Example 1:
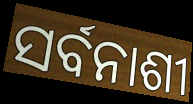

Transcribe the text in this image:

ସର୍ବନାଶୀ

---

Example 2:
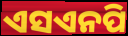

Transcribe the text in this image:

ଏସଏନପି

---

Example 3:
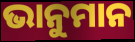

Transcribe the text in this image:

ଭାନୁମାନ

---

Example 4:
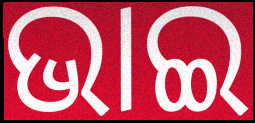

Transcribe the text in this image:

ଭାଇ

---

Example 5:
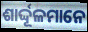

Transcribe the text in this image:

ଶାର୍ଦ୍ଦୂଳମାନେ